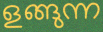
ളങ്ങുന്ന